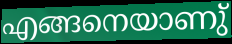
എങ്ങനെയാണു്